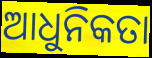
ଆଧୁନିକତା